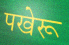
पखेरू